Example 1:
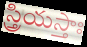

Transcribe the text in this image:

స్త్రియస్తాః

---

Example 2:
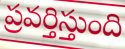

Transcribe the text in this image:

ప్రవర్తిస్తుంది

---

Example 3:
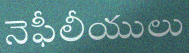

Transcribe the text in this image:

నెఫీలీయులు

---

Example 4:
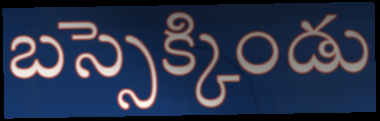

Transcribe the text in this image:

బస్సెక్కిండు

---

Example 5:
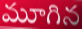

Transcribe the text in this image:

మూగిన